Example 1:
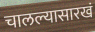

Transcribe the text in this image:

चालल्यासारखं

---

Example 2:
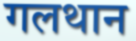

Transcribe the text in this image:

गलथान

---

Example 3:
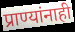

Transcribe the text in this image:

प्राण्यांनाही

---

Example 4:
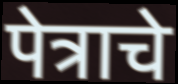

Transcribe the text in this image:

पेत्राचे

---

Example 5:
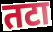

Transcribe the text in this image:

तटा